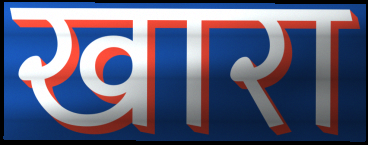
खारा